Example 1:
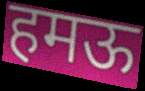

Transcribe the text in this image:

हमऊ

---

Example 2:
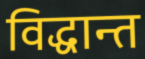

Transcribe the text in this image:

विद्धान्त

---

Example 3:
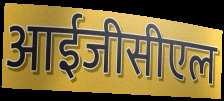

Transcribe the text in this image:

आईजीसीएल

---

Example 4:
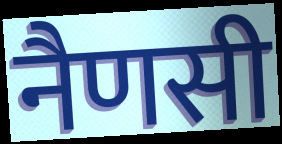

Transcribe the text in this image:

नैणसी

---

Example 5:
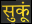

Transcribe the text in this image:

सुकूं